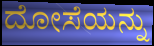
ದೋಸೆಯನ್ನು